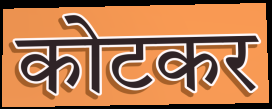
कोटकर